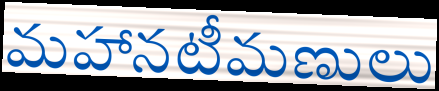
మహానటీమణులు